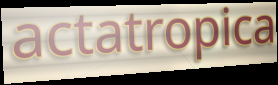
actatropica